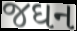
જઘન